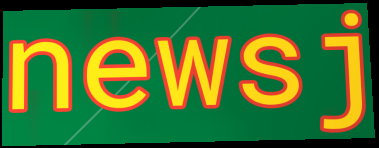
newsj